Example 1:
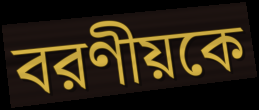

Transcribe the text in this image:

বরণীয়কে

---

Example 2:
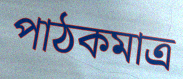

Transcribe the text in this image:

পাঠকমাত্র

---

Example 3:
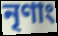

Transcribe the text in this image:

নৃণাং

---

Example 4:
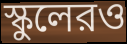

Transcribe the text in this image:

স্কুলেরও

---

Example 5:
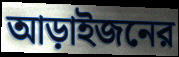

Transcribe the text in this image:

আড়াইজনের